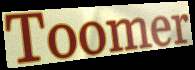
Toomer